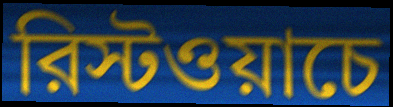
রিস্টওয়াচে